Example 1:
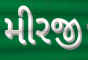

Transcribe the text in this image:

મીરજી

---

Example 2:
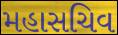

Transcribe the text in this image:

મહાસચિવ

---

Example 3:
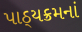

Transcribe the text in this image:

પાઠ્યક્રમનાં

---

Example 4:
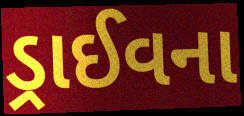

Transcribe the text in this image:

ડ્રાઈવના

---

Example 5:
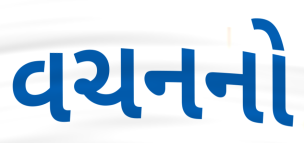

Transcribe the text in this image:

વચનનો